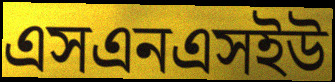
এসএনএসইউ